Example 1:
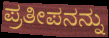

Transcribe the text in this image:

ಪ್ರತೀಪನನ್ನು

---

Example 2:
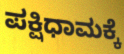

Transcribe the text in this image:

ಪಕ್ಷಿಧಾಮಕ್ಕೆ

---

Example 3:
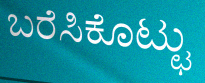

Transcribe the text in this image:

ಬರೆಸಿಕೊಟ್ಟು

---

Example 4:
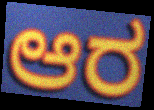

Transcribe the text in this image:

ಆರ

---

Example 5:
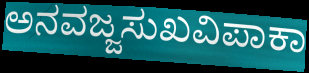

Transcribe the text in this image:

ಅನವಜ್ಜಸುಖವಿಪಾಕಾ